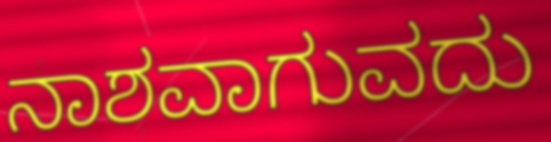
ನಾಶವಾಗುವದು